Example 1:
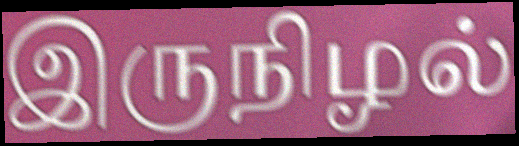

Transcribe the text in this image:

இருநிழல்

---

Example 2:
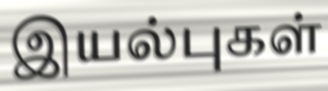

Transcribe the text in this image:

இயல்புகள்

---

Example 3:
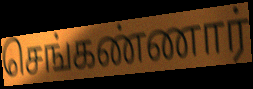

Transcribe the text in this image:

செங்கண்ணார்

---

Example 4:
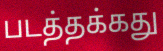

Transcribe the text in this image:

படத்தக்கது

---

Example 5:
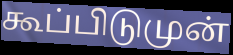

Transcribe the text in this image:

கூப்பிடுமுன்